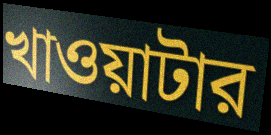
খাওয়াটার